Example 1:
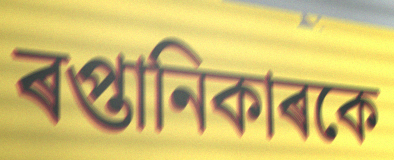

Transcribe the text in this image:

ৰপ্তানিকাৰকে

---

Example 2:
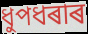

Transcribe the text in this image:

ধুপধৰাৰ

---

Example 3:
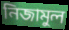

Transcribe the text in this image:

নিজামুল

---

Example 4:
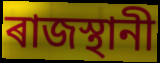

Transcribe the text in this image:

ৰাজস্থানী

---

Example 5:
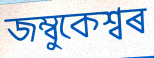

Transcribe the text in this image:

জম্বুকেশ্বৰ